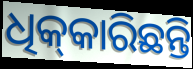
ଧିକ୍‌କାରିଛନ୍ତି